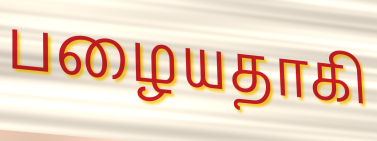
பழையதாகி